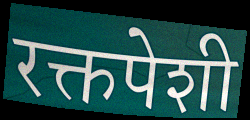
रक्तपेशी